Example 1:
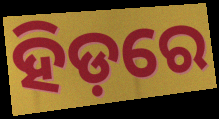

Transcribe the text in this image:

ହିଡ଼ରେ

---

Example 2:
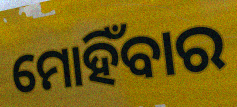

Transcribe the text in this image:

ମୋହିଁବାର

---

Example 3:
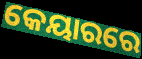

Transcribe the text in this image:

କେୟାରରେ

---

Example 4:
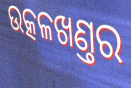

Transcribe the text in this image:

ଉତ୍କଳଖଣ୍ତର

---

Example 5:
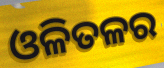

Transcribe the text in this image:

ଓଳିତଳର